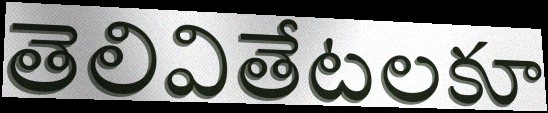
తెలివితేటలకూ